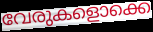
വേരുകളൊക്കെ